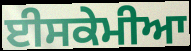
ਈਸਕੇਮੀਆ